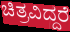
ಚಿತ್ರವಿದ್ದರೆ